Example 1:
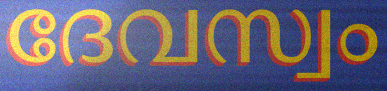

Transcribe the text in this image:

ദേവസ്വം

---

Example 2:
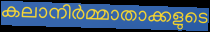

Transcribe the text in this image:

കലാനിർമ്മാതാക്കളുടെ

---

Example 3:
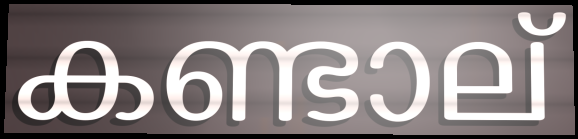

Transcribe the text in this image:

കണ്ടാല്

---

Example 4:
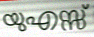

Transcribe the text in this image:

യുഎസ്സ്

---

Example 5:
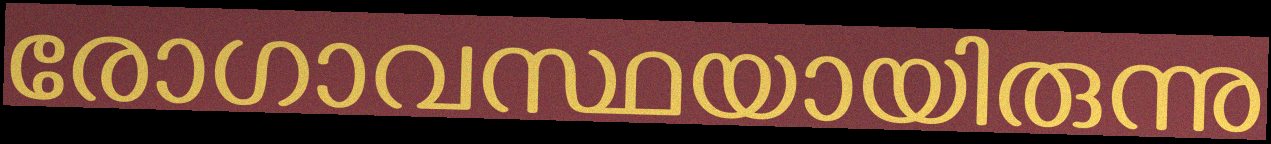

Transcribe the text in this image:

രോഗാവസ്ഥയായിരുന്നു